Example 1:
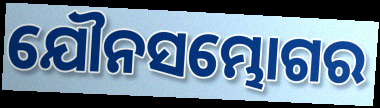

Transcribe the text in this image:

ଯୌନସମ୍ଭୋଗର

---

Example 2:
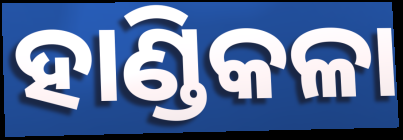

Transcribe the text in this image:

ହାଣ୍ଡିକଳା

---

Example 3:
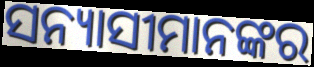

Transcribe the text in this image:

ସନ୍ୟାସୀମାନଙ୍କର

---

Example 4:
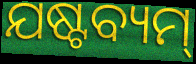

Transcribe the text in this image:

ଯଷ୍ଟବ୍ୟମ୍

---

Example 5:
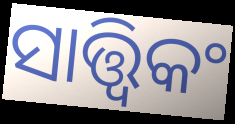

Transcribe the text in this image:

ସାତ୍ତ୍ୱିକଂ